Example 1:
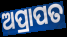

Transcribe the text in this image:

ଅପ୍ରାପତ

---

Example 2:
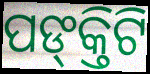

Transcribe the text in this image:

ପଙ୍‌କ୍ତିଟି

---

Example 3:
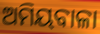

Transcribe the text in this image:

ଅମିୟବାଳା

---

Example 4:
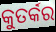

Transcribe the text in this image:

କୁତର୍କର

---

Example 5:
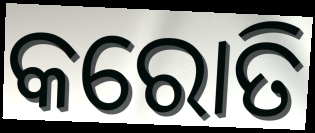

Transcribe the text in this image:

କରୋତି